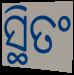
ସ୍ଥିତଂ